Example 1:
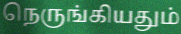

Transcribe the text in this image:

நெருங்கியதும்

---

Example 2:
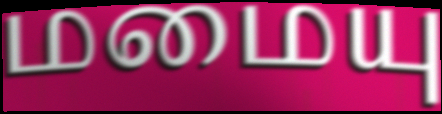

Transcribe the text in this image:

மமையு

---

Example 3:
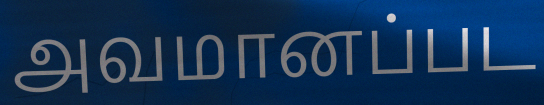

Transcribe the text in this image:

அவமானப்பட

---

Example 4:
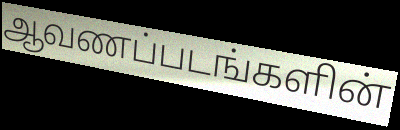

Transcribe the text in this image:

ஆவணப்படங்களின்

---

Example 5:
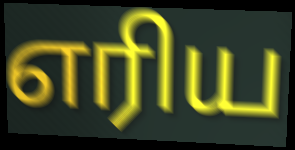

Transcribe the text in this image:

எரிய